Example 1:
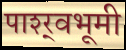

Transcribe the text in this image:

पाश्र्वभूमी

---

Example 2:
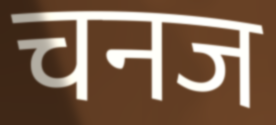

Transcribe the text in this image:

चनज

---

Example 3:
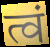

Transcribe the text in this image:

त्वं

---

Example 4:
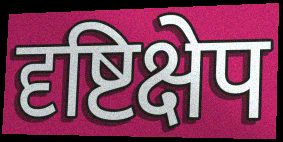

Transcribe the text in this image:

दृष्टिक्षेप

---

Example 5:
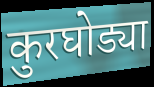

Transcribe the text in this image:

कुरघोड्या